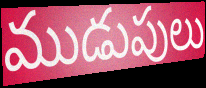
ముడుపులు